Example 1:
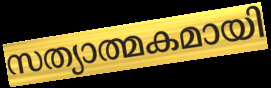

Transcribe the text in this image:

സത്യാത്മകമായി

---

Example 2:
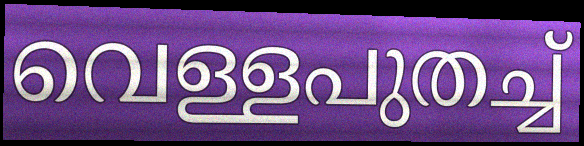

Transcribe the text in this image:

വെള്ളപുതച്ച്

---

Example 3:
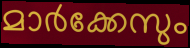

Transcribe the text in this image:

മാർക്കേസും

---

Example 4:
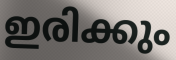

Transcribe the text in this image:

ഇരിക്കും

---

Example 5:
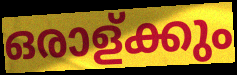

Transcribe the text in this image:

ഒരാള്ക്കും